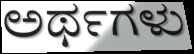
ಅರ್ಥಗಳು